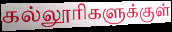
கல்லூரிகளுக்குள்